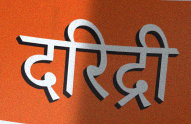
दरिद्री